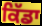
ਕਿੱਡਾ